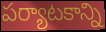
పర్యాటకాన్ని